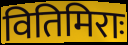
वितिमिराः